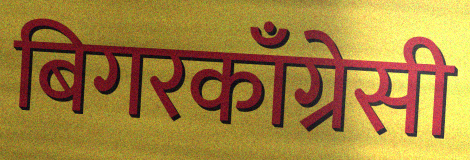
बिगरकाँग्रेसी